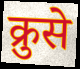
क्रुसे